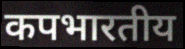
कपभारतीय